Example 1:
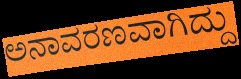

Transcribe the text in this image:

ಅನಾವರಣವಾಗಿದ್ದು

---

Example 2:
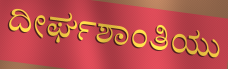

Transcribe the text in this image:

ದೀರ್ಘಶಾಂತಿಯು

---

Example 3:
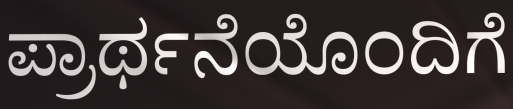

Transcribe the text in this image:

ಪ್ರಾರ್ಥನೆಯೊಂದಿಗೆ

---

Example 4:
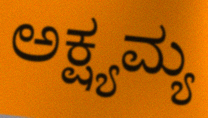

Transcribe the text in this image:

ಅಕ್ಷ್ಯಮ್ಯ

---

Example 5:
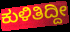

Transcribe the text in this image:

ಕುಳಿತಿದ್ದೀ